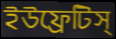
ইউফ্রেটিস্